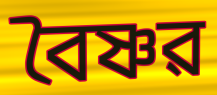
বৈষ্ণৱ